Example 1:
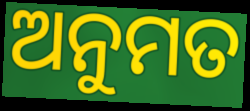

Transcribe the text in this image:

ଅନୁମତ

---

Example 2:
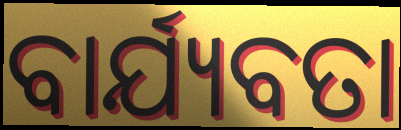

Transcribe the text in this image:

ବାର୍ଯ୍ୟବତା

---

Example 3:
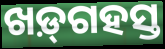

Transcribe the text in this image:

ଖଡ଼୍‌ଗହସ୍ତ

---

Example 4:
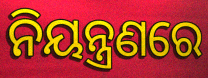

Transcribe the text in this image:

ନିୟନ୍ତ୍ରଣରେ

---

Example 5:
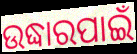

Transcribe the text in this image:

ଉଦ୍ଧାରପାଇଁ